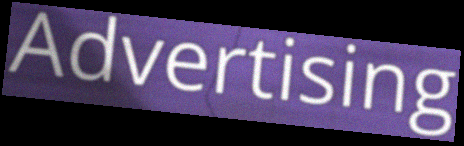
Advertising